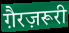
ग़ैरज़रूरी